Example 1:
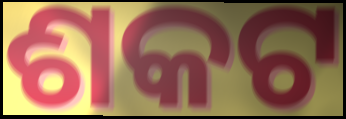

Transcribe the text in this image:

ଶକଟ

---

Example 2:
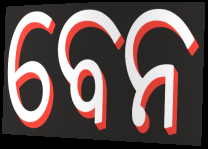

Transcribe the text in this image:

ବେନ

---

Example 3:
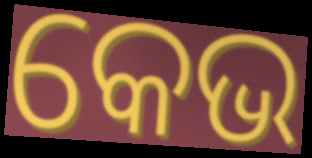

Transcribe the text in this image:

କେଭ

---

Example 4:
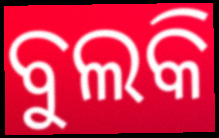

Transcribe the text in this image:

ବୁଲକି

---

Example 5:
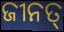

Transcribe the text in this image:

ଜୀନତ୍